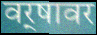
वर्षावर